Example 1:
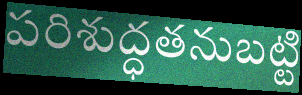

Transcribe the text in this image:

పరిశుద్ధతనుబట్టి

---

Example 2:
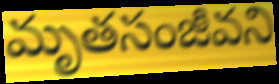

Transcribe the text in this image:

మృతసంజీవని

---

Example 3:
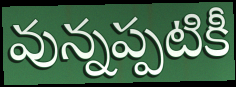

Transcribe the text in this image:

వున్నప్పటికీ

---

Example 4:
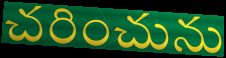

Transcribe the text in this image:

చరించును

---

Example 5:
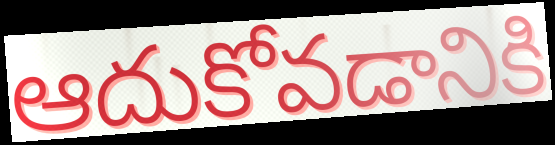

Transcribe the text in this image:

ఆదుకోవడానికి